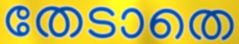
തേടാതെ